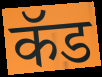
कॅड